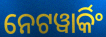
ନେଟୱାର୍କିଂ